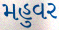
મહુવર